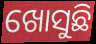
ଖୋସୁଛି